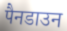
पैनडाउन